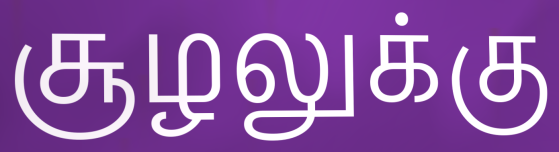
சூழலுக்கு